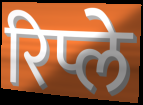
रिप्ले